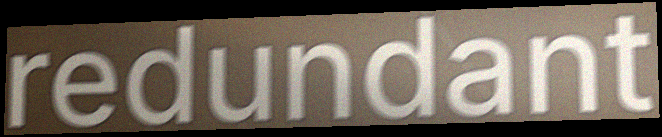
redundant